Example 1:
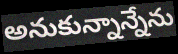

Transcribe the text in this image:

అనుకున్నాన్నేను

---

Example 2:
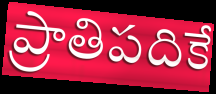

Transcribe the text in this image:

ప్రాతిపదికే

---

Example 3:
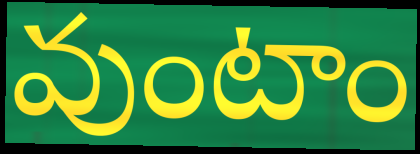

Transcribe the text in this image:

వుంటాం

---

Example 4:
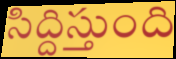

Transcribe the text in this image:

సిద్దిస్తుంది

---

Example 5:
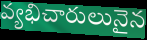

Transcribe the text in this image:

వ్యభిచారులునైన